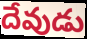
దేవుడు